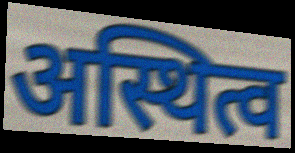
अस्थित्व